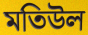
মতিউল